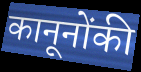
कानूनोंकी